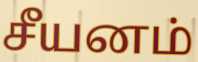
சீயனம்